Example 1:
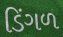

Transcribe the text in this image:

ડિંગળ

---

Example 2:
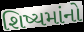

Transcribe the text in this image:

શિષ્યમાંનો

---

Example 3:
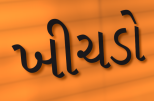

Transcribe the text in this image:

ખીચડો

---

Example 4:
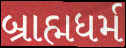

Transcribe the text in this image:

બ્રાહ્મધર્મ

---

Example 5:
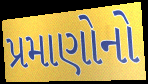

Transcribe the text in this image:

પ્રમાણોનો